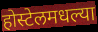
होस्टेलमधल्या